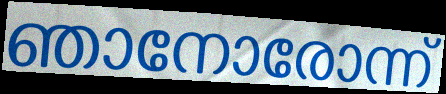
ഞാനോരോന്ന്